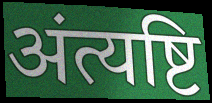
अंत्यष्टि